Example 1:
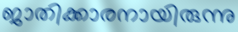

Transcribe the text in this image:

ജാതിക്കാരനായിരുന്നു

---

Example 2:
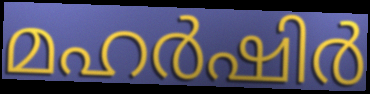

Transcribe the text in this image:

മഹർഷിർ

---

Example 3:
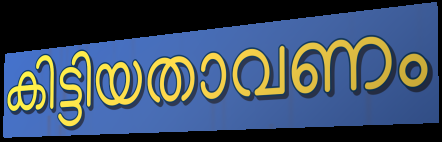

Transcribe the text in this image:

കിട്ടിയതാവണം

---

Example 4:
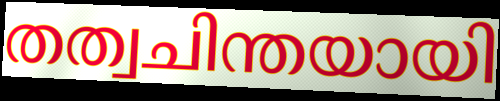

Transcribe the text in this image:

തത്വചിന്തയായി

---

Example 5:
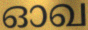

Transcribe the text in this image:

ഓഖ